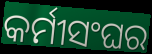
କର୍ମୀସଂଘର